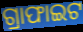
ଗ୍ରାଫାଇଟ